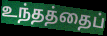
உந்தத்தைப்